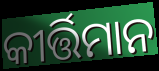
କୀର୍ତ୍ତିମାନ